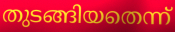
തുടങ്ങിയതെന്ന്